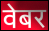
वेबर